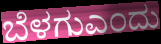
ಬೆಳಗುಎಂದು